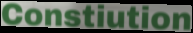
Constiution